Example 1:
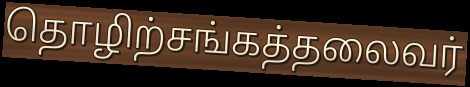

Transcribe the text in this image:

தொழிற்சங்கத்தலைவர்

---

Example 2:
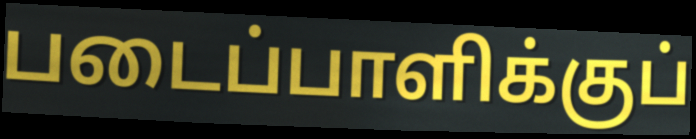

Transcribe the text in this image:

படைப்பாளிக்குப்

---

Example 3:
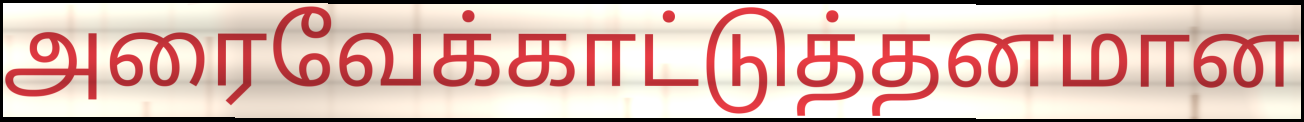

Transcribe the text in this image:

அரைவேக்காட்டுத்தனமான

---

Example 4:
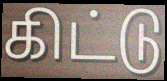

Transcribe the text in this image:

கிட்டு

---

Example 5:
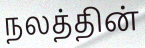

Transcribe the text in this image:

நலத்தின்